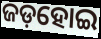
ଜଡ଼ହୋଇ